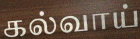
கல்வாய்